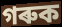
গৰুক